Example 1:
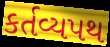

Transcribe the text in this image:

કર્તવ્યપથ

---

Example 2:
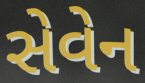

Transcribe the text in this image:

સેવેન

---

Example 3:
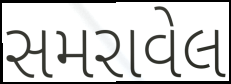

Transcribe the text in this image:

સમરાવેલ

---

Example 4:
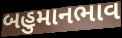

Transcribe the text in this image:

બહુમાનભાવ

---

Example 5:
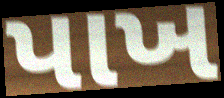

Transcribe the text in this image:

પાખ